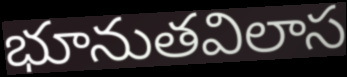
భూనుతవిలాస